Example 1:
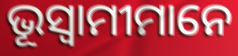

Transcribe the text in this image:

ଭୂସ୍ୱାମୀମାନେ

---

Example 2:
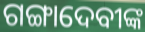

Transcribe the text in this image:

ଗଙ୍ଗାଦେବୀଙ୍କ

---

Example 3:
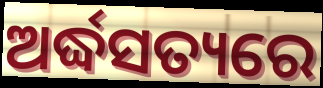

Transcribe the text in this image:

ଅର୍ଦ୍ଧସତ୍ୟରେ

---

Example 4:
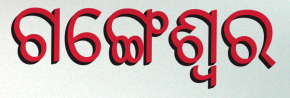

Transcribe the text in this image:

ଗଙ୍ଗେଶ୍ଵର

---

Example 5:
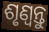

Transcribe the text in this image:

ଶୃଣ୍ଵନ୍ତୁ